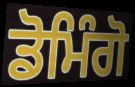
ਡੋਮਿੰਗੋ